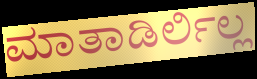
ಮಾತಾಡಿರ್ಲಿಲ್ಲ